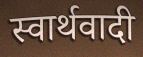
स्वार्थवादी